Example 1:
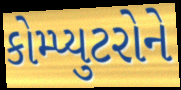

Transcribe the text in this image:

કોમ્પ્યુટરોને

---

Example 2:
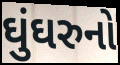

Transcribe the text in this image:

ઘુંઘરુનો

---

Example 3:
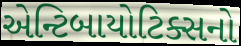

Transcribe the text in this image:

એન્ટિબાયોટિક્સનો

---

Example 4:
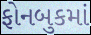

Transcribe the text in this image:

ફોનબુકમાં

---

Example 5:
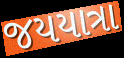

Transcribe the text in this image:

જયયાત્રા